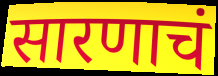
सारणाचं